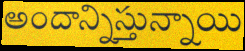
అందాన్నిస్తున్నాయి